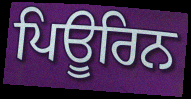
ਪਿਊਰਿਨ